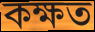
কক্ষত